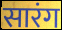
सारंग